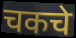
चकचे